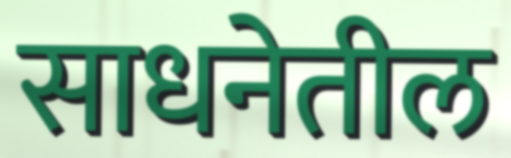
साधनेतील